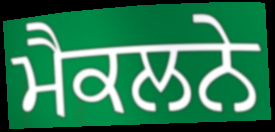
ਮੈਕਲਨੇ